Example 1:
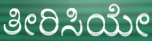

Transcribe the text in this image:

ತೀರಿಸಿಯೇ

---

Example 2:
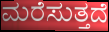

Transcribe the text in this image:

ಮರೆಸುತ್ತದೆ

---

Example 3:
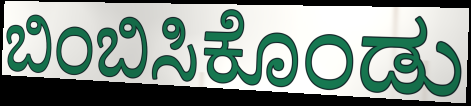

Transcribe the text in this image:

ಬಿಂಬಿಸಿಕೊಂಡು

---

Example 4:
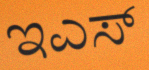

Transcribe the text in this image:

ಇಎಸ್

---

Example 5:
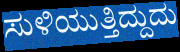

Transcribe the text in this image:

ಸುಳಿಯುತ್ತಿದ್ದುದು